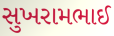
સુખરામભાઈ